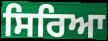
ਸਿਰਿਆ